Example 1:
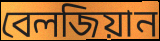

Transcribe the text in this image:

বেলজিয়ান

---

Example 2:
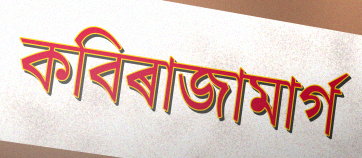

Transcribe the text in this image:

কবিৰাজামাৰ্গ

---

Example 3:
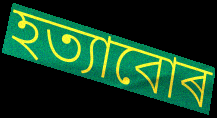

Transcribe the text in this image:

হত্যাবোৰ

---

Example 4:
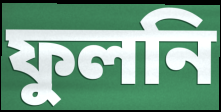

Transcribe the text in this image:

ফুলনি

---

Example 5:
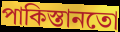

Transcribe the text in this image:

পাকিস্তানতো